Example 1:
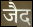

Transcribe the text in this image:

जैद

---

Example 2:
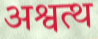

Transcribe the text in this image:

अश्वत्थ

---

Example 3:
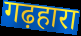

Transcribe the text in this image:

गढ़हारा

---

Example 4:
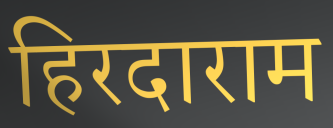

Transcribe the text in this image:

हिरदाराम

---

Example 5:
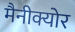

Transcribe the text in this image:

मैनीक्योर